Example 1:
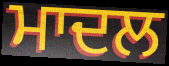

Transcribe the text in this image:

ਮਾਦਲ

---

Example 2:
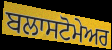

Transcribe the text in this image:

ਬਲਾਸਟੋਮੇਅਰ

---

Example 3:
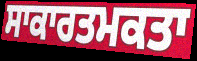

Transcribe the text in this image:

ਸਾਕਾਰਤਮਕਤਾ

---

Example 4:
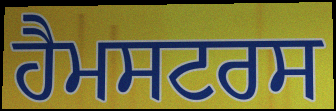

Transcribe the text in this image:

ਹੈਮਸਟਰਸ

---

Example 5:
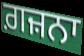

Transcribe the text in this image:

ਗ਼ਜ਼ਨਾ